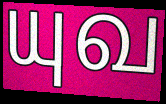
யுவ